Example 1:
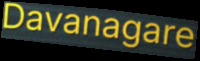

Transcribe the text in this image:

Davanagare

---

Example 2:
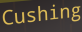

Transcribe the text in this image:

Cushing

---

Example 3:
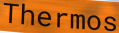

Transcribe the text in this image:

Thermos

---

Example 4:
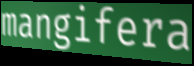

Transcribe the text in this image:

mangifera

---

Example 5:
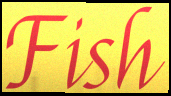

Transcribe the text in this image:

Fish